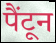
पैंटून